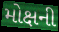
મોક્ષની